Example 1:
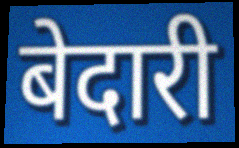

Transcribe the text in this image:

बेदारी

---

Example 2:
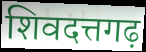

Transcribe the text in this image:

शिवदत्तगढ़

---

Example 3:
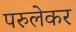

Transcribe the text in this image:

परुलेकर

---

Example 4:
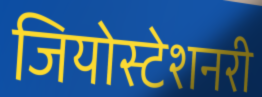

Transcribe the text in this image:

जियोस्टेशनरी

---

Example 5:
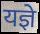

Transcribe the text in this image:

यज्ञे